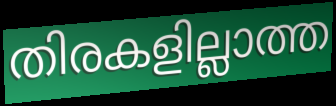
തിരകളില്ലാത്ത